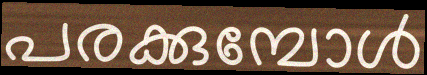
പരക്കുമ്പോൾ